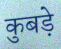
कुबड़े